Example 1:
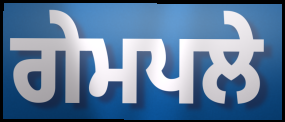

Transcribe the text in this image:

ਗੇਮਪਲੇ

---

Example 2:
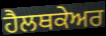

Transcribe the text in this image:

ਹੈਲਥਕੇਅਰ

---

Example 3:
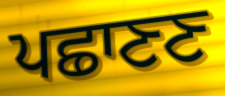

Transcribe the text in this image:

ਪਛਾਣਣ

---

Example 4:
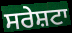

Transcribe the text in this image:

ਸਰੇਸ਼ਟਾ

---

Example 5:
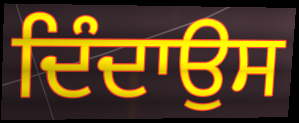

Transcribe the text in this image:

ਦਿੰਦਾਉਸ